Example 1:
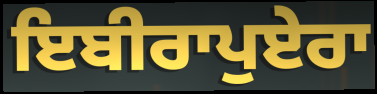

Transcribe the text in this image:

ਇਬੀਰਾਪੁਏਰਾ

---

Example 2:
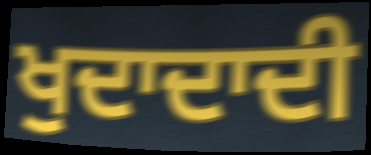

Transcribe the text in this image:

ਖੁਦਾਦਾਦੀ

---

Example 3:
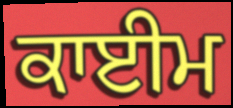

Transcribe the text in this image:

ਕਾਈਮ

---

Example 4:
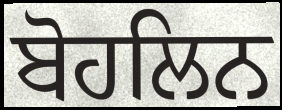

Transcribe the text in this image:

ਬੋਹਲਿਨ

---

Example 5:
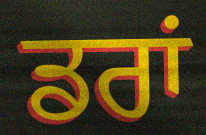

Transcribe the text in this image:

ਡਰਾਂ